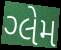
ગ્લેમ